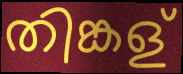
തിങ്കള്